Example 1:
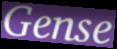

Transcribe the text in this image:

Gense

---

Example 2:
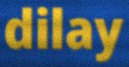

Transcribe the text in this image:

dilay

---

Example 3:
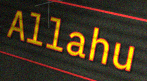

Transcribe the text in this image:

Allahu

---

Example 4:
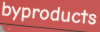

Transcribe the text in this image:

byproducts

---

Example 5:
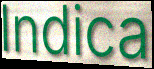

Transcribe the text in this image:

Indica